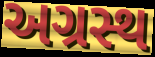
અગ્રસ્થ